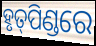
ହୃତ୍‌ପିଣ୍ଡରେ